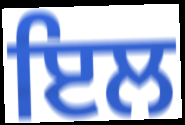
ਇਲ